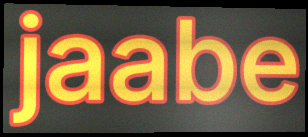
jaabe